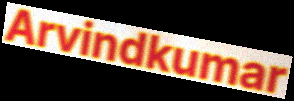
Arvindkumar